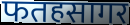
फतहसागर